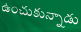
ఉంచుకున్నాడు